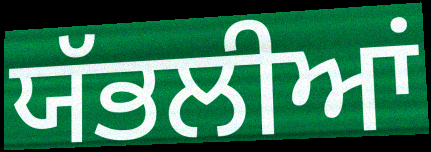
ਯੱਭਲੀਆਂ